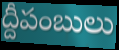
ద్దీపంబులు